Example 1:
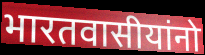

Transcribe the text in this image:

भारतवासीयांनो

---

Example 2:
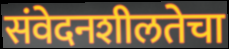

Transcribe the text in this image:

संवेदनशीलतेचा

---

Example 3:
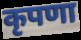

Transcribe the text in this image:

कृपणा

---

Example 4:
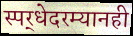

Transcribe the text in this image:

स्पर्धेदरम्यानही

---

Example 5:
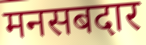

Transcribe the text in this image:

मनसबदार